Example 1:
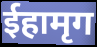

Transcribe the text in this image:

ईहामृग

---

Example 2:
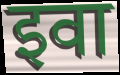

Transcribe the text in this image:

इवा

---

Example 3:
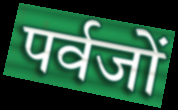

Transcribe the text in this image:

पर्वजों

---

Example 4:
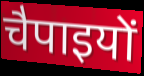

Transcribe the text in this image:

चैपाइयों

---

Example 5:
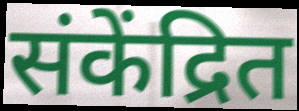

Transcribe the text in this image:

संकेंद्रित